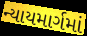
ન્યાયમાર્ગમાં